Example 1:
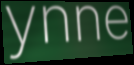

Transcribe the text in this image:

ynne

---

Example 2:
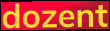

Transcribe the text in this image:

dozent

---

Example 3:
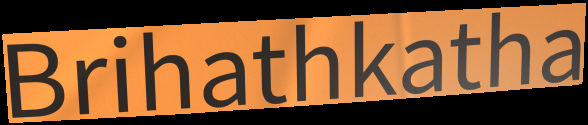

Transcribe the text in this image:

Brihathkatha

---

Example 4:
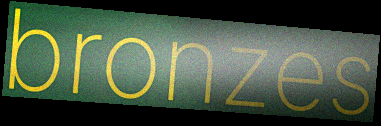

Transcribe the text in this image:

bronzes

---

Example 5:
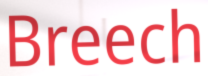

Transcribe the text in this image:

Breech